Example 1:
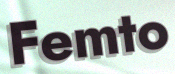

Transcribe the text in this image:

Femto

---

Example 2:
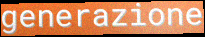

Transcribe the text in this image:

generazione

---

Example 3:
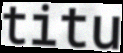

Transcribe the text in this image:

titu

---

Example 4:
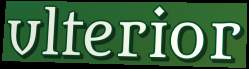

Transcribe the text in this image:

ulterior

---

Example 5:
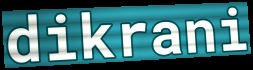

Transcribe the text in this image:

dikrani